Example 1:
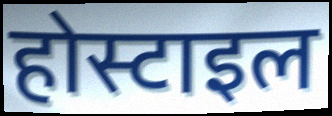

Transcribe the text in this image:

होस्टाइल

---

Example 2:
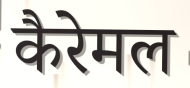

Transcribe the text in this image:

कैरेमल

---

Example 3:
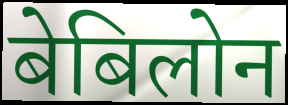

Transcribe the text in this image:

बेबिलोन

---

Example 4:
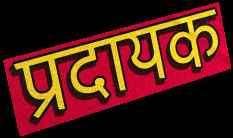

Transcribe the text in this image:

प्रदायक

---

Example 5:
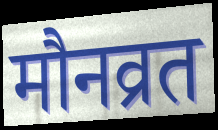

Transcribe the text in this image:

मौनव्रत